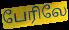
பேரிலே